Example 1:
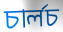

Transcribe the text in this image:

চাৰ্লচ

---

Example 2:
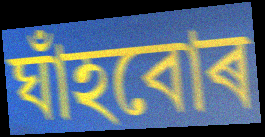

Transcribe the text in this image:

ঘাঁহবোৰ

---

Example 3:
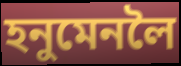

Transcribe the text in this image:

হনুমেনলৈ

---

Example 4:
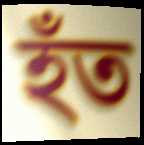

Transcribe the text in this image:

হঁত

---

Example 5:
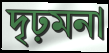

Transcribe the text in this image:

দৃঢ়মনা